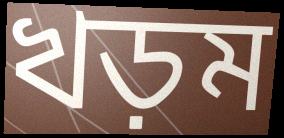
খড়ম